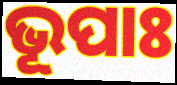
ଭୂପାଃ